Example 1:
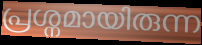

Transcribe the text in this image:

പ്രശ്നമായിരുന്ന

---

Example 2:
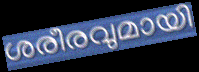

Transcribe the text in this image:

ശരീരവുമായി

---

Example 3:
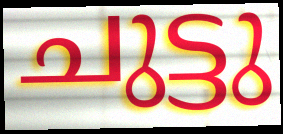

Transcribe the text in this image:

ചുട്ടു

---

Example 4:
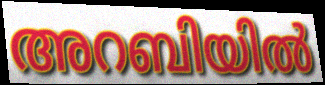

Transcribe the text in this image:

അറബിയിൽ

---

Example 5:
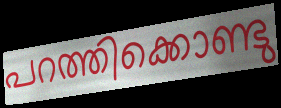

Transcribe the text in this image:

പറത്തിക്കൊണ്ടു